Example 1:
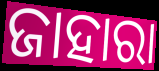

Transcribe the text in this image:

ଜାହାରା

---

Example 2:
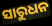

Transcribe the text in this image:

ସାରୁଧନ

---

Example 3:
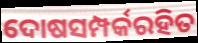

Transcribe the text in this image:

ଦୋଷସମ୍ପର୍କରହିତ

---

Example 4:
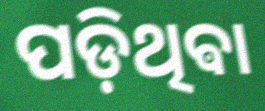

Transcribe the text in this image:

ପଡ଼ିଥିଵା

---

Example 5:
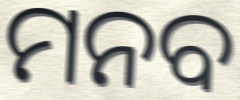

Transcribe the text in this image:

ମନବ